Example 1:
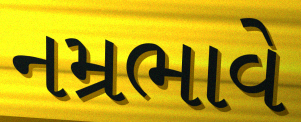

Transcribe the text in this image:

નમ્રભાવે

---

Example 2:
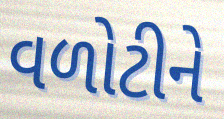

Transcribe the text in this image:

વળોટીને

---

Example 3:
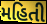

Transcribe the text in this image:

મહિતી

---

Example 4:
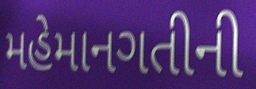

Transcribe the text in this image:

મહેમાનગતીની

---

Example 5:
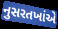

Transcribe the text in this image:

નુસરતખાંએ